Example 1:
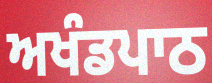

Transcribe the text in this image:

ਅਖੰਡਪਾਠ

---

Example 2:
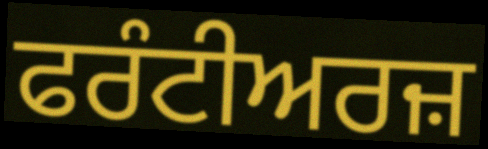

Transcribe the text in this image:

ਫਰੰਟੀਅਰਜ਼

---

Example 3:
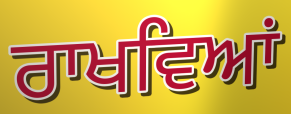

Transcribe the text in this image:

ਰਾਖਵਿਆਂ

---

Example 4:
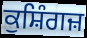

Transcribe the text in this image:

ਕੁਸ਼ਿੰਗਜ਼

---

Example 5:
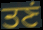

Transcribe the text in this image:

ਤਣਂ